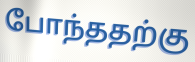
போந்ததற்கு